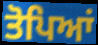
ਤੋਪਿਆਂ